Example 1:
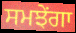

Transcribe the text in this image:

ਸਮਝੇਂਗਾ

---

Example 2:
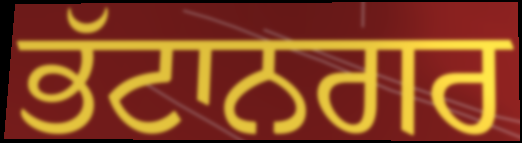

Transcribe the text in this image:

ਭੱਟਾਨਗਰ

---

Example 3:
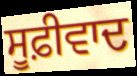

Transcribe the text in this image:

ਸੂਫ਼ੀਵਾਦ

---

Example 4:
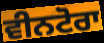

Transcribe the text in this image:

ਵੀਨਟੋਰਾ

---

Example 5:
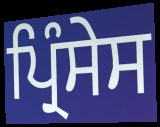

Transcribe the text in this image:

ਪ੍ਰਿੰਸੇਸ